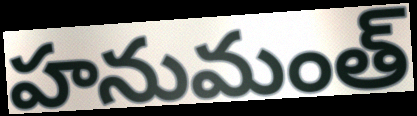
హనుమంత్